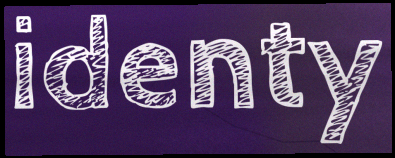
identy